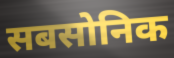
सबसोनिक